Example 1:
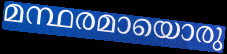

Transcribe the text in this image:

മന്ഥരമായൊരു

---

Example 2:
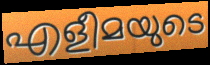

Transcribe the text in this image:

എളീമയുടെ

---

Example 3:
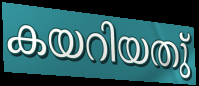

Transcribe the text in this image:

കയറിയതു്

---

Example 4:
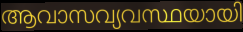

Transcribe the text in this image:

ആവാസവ്യവസ്ഥയായി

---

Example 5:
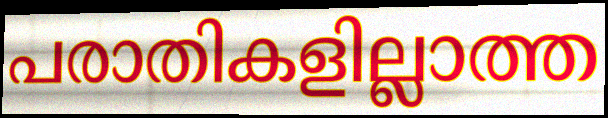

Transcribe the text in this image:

പരാതികളില്ലാത്ത